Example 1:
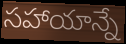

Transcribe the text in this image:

సహాయాన్నే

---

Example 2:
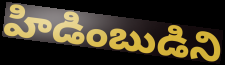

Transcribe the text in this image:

హిడింబుడిని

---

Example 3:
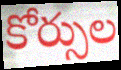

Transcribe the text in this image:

కోర్సుల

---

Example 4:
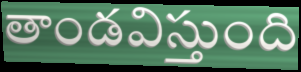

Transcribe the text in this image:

తాండవిస్తుంది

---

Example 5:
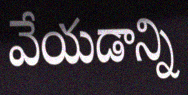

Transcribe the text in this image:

వేయడాన్ని